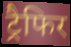
ट्रैफिर